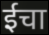
ईचा